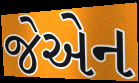
જેએન